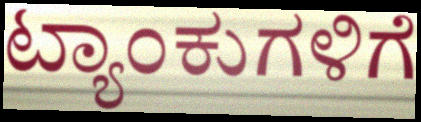
ಟ್ಯಾಂಕುಗಳಿಗೆ